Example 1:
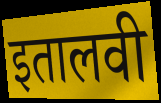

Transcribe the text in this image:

इतालवी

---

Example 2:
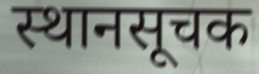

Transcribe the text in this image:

स्थानसूचक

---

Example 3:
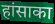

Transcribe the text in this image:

हांसाका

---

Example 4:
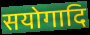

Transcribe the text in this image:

सयोगादि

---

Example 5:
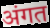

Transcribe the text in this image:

अंगत